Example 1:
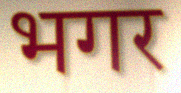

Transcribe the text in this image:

भगर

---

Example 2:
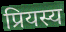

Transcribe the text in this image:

प्रियस्य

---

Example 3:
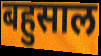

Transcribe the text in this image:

बहुसाल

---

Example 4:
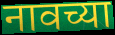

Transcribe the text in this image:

नावच्या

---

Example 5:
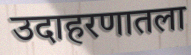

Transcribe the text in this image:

उदाहरणातला